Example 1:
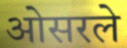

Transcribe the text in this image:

ओसरले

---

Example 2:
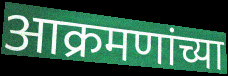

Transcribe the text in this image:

आक्रमणांच्या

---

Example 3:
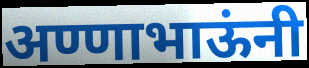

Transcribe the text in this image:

अण्णाभाऊंनी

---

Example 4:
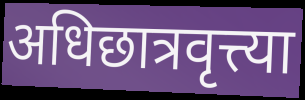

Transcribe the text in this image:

अधिछात्रवृत्त्या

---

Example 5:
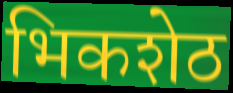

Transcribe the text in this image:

भिकशेठ